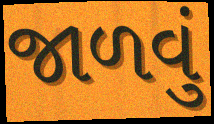
જાળવું